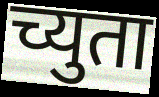
च्युता